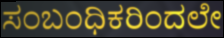
ಸಂಬಂಧಿಕರಿಂದಲೇ